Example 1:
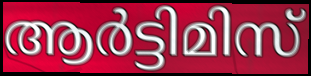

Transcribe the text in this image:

ആർട്ടിമിസ്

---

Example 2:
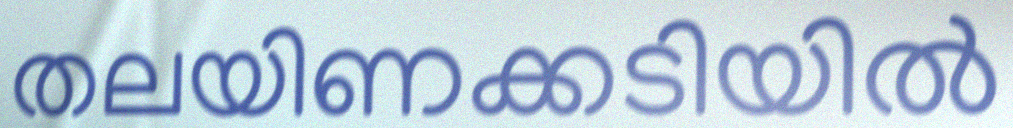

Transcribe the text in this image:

തലയിണക്കടിയിൽ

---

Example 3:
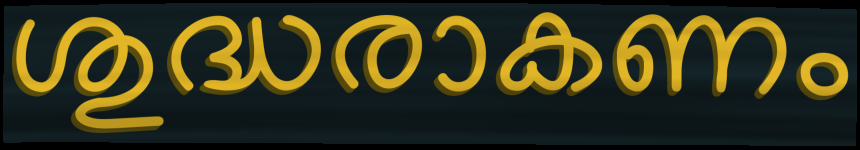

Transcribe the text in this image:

ശുദ്ധരാകണം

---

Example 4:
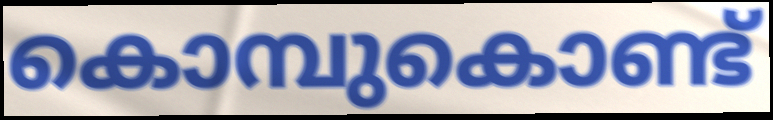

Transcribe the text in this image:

കൊമ്പുകൊണ്ട്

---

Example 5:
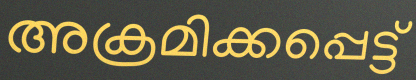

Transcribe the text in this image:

അക്രമിക്കപ്പെട്ട്